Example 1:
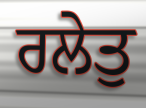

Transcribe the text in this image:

ਰਲੇਤੁ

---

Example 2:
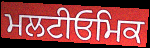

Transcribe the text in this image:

ਮਲਟੀਓਮਿਕ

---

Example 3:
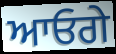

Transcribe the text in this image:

ਆਓਗੇ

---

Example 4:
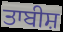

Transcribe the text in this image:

ਤਾਬੀਸ਼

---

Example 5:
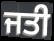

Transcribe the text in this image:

ਜਤੀ